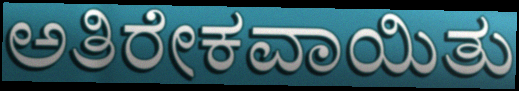
ಅತಿರೇಕವಾಯಿತು